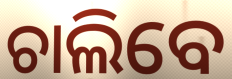
ଚାଲିବେ